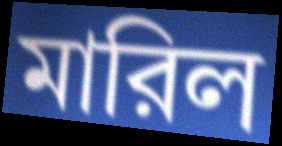
মারিল